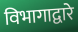
विभागाद्वारे